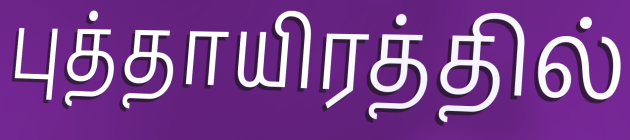
புத்தாயிரத்தில்